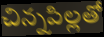
చిన్నపిల్లతో